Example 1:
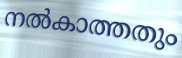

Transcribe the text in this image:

നൽകാത്തതും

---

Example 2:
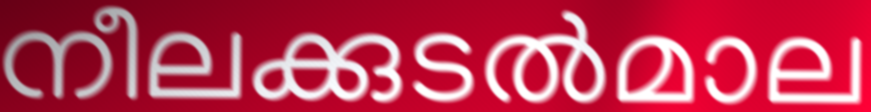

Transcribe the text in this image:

നീലക്കുടൽമാല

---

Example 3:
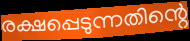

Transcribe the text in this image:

രക്ഷപ്പെടുന്നതിന്റെ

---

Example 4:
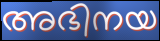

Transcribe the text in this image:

അഭിനയ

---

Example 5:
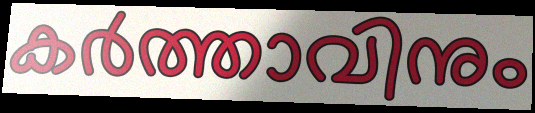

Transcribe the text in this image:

കർത്താവിനും